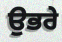
ਉਭਰੇ